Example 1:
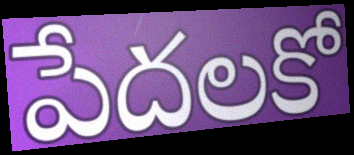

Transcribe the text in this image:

పేదలకో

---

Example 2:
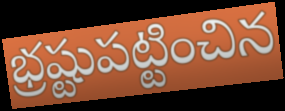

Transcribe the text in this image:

భ్రష్టుపట్టించిన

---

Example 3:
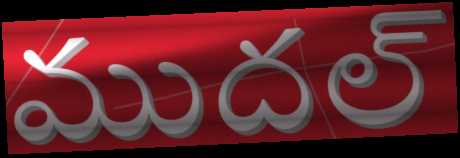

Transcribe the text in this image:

ముదల్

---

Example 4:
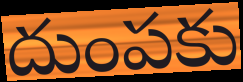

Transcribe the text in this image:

దుంపకు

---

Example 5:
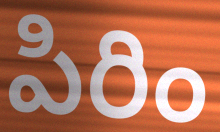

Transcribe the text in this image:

పిరిం